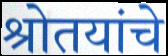
श्रोतयांचे